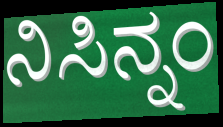
ನಿಸಿನ್ನಂ